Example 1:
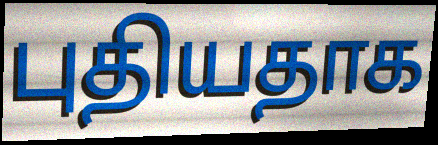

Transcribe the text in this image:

புதியதாக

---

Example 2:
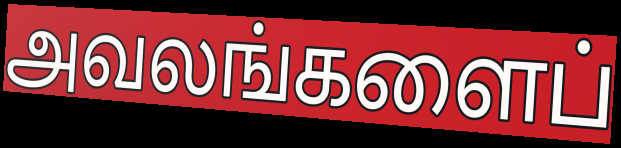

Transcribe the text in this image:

அவலங்களைப்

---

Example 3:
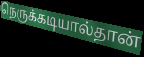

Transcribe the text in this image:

நெருக்கடியால்தான்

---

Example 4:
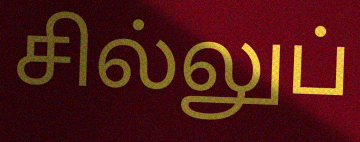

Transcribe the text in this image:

சில்லுப்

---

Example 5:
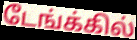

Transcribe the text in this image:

டேங்க்கில்